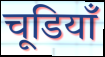
चूडियाँ